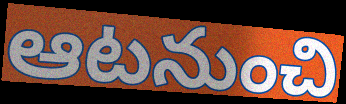
ఆటనుంచి